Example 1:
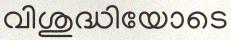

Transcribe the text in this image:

വിശുദ്ധിയോടെ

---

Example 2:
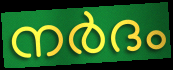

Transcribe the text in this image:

നർദം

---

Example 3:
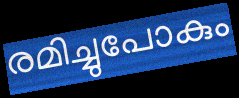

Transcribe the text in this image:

രമിച്ചുപോകും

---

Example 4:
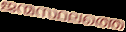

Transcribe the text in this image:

ജന്മസ്ഥലത്തെ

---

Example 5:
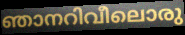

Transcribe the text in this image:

ഞാനറിവീലൊരു